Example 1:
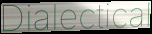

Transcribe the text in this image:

Dialectical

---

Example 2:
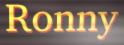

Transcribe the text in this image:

Ronny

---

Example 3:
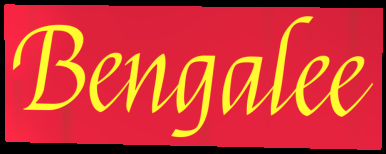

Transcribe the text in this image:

Bengalee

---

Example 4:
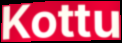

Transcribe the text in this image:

Kottu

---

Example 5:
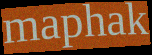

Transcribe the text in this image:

maphak